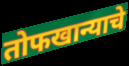
तोफखान्याचे